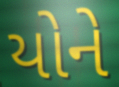
યોને